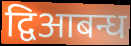
द्विआबन्ध